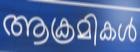
ആക്രമികൾ